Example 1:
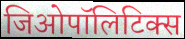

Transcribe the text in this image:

जिओपॉलिटिक्स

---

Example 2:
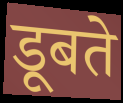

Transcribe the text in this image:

डूबते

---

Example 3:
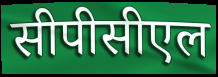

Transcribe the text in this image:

सीपीसीएल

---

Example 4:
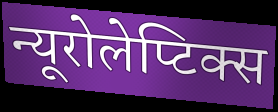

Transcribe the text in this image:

न्यूरोलेप्टिक्स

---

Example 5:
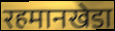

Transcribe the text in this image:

रहमानखेडा